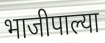
भाजीपाल्या